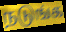
நடுங்க